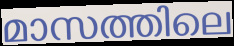
മാസത്തിലെ